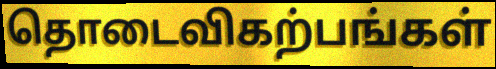
தொடைவிகற்பங்கள்